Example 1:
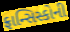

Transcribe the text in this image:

ફ્રાન્સિસ્કોની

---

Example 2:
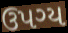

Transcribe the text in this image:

ઉપગ્ય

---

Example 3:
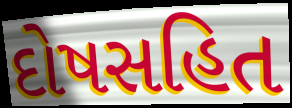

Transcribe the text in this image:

દોષસહિત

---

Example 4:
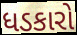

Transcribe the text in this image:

ધડકારો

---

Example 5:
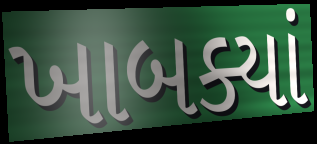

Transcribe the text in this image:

ખાબક્યાં